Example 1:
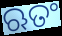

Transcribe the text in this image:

ଋତଂ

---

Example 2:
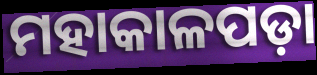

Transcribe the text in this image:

ମହାକାଳପଡ଼ା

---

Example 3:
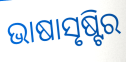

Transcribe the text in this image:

ଭାଷାସୃଷ୍ଟିର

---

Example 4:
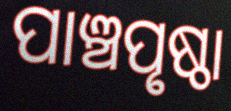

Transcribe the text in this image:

ପାଞ୍ଚପୃଷ୍ଠା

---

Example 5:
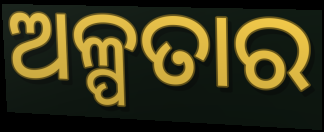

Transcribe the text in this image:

ଅଳ୍ପତାର